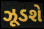
ઝૂડશે